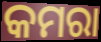
କମରା